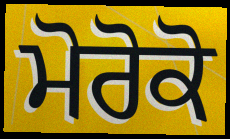
ਮੋਰੋਕੋ